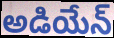
అడియేన్